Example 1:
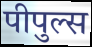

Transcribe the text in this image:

पीपुल्स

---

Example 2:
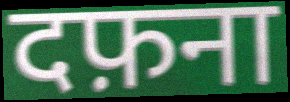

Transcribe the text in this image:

दफ़ना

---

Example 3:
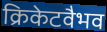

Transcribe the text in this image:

क्रिकेटवैभव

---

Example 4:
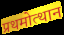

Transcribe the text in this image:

प्रथमोत्थान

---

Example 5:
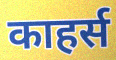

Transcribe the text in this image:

काहर्स